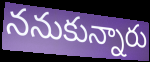
ననుకున్నారు